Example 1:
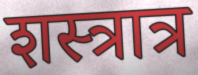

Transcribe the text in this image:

शस्त्रात्र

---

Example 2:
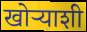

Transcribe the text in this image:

खोऱ्याशी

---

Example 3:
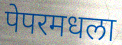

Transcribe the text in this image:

पेपरमधला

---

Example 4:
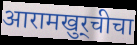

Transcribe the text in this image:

आरामखुर्चीचा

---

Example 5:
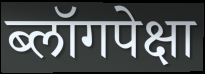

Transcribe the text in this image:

ब्लॉगपेक्षा